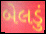
બેલડું